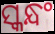
ସ୍କନ୍ଧଂ